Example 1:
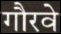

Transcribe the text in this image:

गौरवे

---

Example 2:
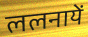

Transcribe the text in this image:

ललनायें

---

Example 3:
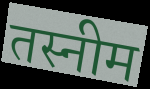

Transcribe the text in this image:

तस्नीम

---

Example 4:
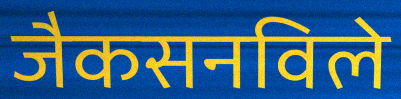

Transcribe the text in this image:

जैकसनविले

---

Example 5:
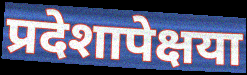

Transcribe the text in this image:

प्रदेशापेक्षया